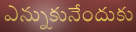
ఎన్నుకునేందుకు